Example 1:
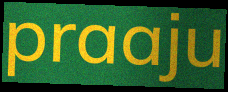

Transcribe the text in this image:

praaju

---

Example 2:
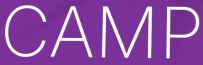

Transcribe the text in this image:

CAMP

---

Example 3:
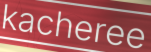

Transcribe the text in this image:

kacheree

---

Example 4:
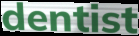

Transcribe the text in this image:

dentist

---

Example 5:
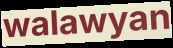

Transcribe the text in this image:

walawyan